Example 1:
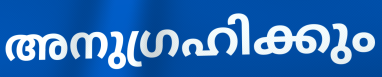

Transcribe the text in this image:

അനുഗ്രഹിക്കും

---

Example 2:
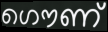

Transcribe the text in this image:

ഗൌണ്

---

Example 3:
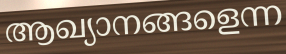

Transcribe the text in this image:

ആഖ്യാനങ്ങളെന്ന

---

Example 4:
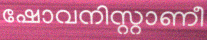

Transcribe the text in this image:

ഷോവനിസ്റ്റാണീ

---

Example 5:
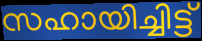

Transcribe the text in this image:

സഹായിച്ചിട്ട്